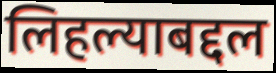
लिहल्याबद्दल